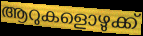
ആറുകളൊഴുക്ക്